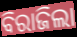
ବିରାଜିଲା